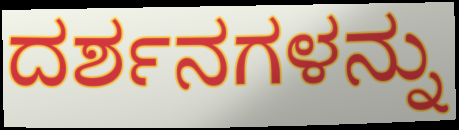
ದರ್ಶನಗಳನ್ನು